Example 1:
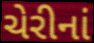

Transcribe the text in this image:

ચેરીનાં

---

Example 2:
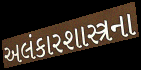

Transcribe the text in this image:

અલંકારશાસ્ત્રના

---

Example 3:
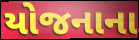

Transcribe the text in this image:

યોજનાના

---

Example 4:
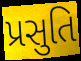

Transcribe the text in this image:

પ્રસુતિ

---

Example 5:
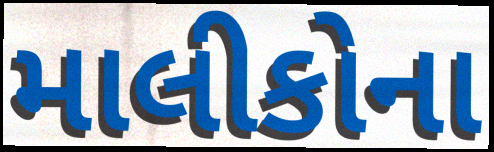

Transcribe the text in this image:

માલીકોના